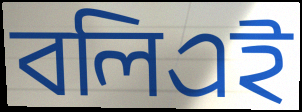
বলিএই